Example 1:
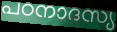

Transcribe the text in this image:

പഠനാദസ്യ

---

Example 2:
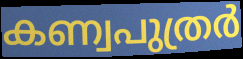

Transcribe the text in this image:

കണ്വപുത്രർ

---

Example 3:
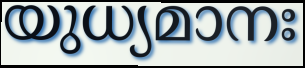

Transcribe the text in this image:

യുധ്യമാനഃ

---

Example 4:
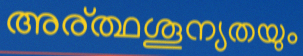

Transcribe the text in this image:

അര്ത്ഥശൂന്യതയും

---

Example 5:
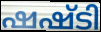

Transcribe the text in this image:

ഷഷ്ടി